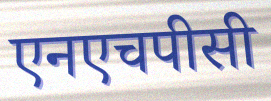
एनएचपीसी